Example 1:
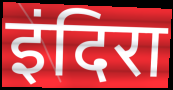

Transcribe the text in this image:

इंदिरा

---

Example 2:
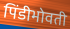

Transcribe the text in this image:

पिंडीभोवती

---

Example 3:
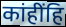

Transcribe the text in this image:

कांहींहि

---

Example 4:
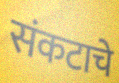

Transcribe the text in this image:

संकटाचे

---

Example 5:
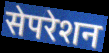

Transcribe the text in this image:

सेपरेशन